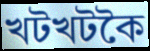
খটখটকৈ